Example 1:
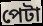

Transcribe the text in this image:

পেটা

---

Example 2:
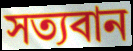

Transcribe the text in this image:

সত্যবান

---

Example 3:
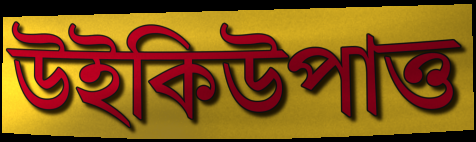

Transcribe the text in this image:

উইকিউপাত্ত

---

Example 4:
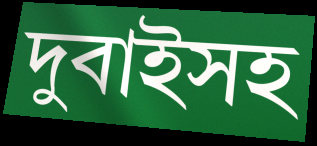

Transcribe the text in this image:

দুবাইসহ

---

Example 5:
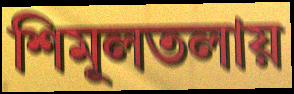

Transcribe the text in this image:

শিমূলতলায়